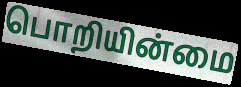
பொறியின்மை